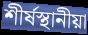
শীর্ষস্থানীয়া